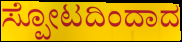
ಸ್ಪೋಟದಿಂದಾದ